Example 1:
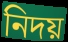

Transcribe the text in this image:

নিদয়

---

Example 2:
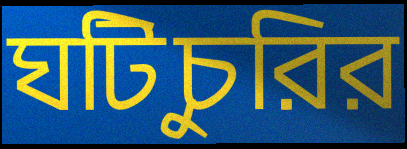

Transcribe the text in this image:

ঘটিচুরির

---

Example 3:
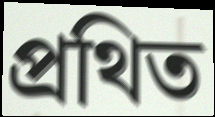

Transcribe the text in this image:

প্রথিত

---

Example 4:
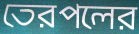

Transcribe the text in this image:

তেরপলের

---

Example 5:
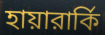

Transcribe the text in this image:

হায়ারার্কি